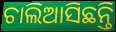
ଚାଲିଆସିଛନ୍ତି